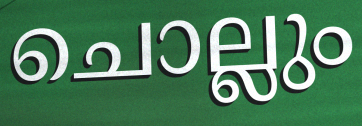
ചൊല്ലും